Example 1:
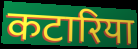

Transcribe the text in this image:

कटारिया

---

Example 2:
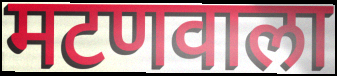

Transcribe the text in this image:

मटणवाला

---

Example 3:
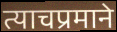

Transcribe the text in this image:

त्याचप्रमाने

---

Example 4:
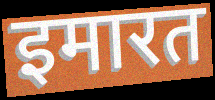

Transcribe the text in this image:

इमारत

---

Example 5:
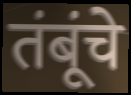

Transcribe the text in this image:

तंबूंचे